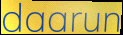
daarun